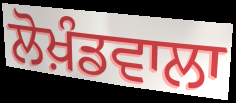
ਲੋਖ਼ੰਡਵਾਲਾ